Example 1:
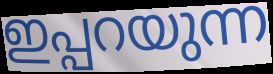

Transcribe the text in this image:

ഇപ്പറയുന്ന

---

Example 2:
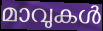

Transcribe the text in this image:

മാവുകൾ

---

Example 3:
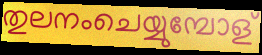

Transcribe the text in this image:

തുലനംചെയ്യുമ്പോള്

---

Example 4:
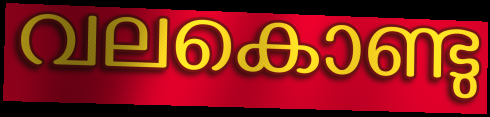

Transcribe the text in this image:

വലകൊണ്ടു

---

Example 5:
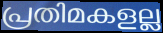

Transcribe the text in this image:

പ്രതിമകളല്ല